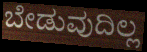
ಬೇಡುವುದಿಲ್ಲ